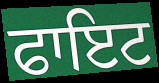
ਫਾਇਟ